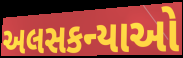
અલસકન્યાઓ